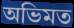
অভিমত